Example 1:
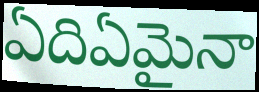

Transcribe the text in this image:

ఏదిఏమైనా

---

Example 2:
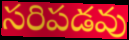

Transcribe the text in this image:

సరిపడవు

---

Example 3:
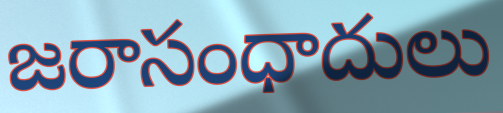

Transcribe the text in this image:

జరాసంధాదులు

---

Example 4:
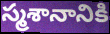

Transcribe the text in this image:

స్మశానానికి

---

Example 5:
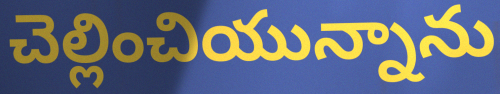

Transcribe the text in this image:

చెల్లించియున్నాను